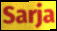
Sarja